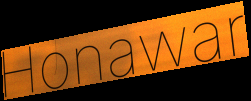
Honawar